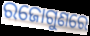
ରଜୋଗୁଣରେ